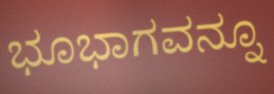
ಭೂಭಾಗವನ್ನೂ